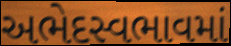
અભેદસ્વભાવમાં